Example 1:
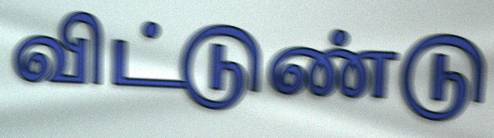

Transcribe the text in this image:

விட்டுண்டு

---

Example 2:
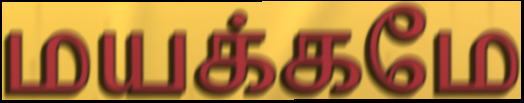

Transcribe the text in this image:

மயக்கமே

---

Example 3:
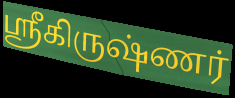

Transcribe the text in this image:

ஶ்ரீகிருஷ்ணர்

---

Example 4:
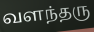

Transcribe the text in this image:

வளந்தரு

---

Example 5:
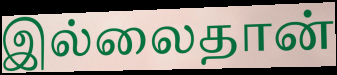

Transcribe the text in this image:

இல்லைதான்